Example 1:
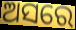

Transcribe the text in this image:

ଅସରେ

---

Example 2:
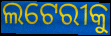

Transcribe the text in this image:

ଲଟେରୀକୁ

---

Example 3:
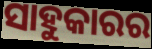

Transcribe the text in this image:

ସାହୁକାରର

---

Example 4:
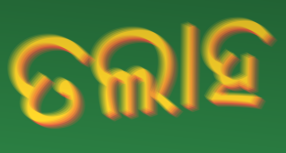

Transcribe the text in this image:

ତଲାହ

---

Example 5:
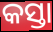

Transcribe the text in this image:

କସ୍ତା